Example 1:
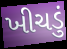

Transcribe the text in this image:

ખીચડું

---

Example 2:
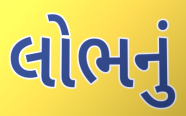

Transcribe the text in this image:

લોભનું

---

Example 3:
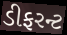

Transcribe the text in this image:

ડીફરન્ટ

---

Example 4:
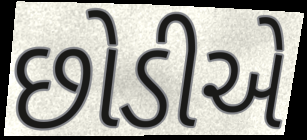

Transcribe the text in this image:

છોડીએ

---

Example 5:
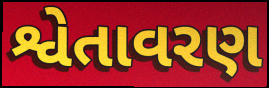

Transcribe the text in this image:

શ્વેતાવરણ